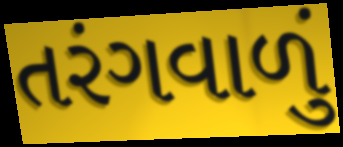
તરંગવાળું